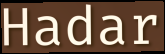
Hadar